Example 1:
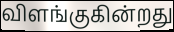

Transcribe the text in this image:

விளங்குகின்றது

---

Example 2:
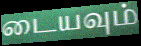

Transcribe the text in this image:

டையவும்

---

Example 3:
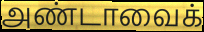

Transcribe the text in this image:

அண்டாவைக்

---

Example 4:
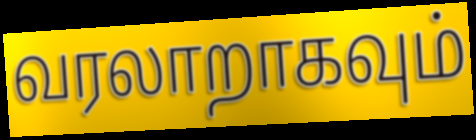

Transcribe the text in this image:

வரலாறாகவும்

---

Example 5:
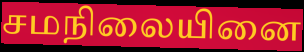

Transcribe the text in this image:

சமநிலையினை